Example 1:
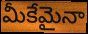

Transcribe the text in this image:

మీకేమైనా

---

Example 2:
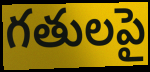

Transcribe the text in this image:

గతులపై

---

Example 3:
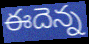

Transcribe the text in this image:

ఈదెన్న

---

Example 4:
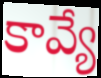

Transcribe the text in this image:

కావ్యే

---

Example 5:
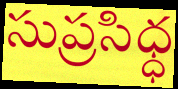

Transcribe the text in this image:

సుప్రసిధ్ధ